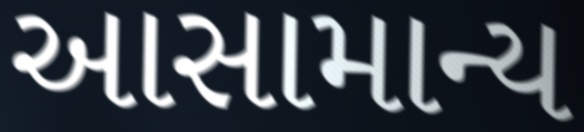
આસામાન્ય